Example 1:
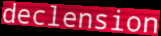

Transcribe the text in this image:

declension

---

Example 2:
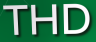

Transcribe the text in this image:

THD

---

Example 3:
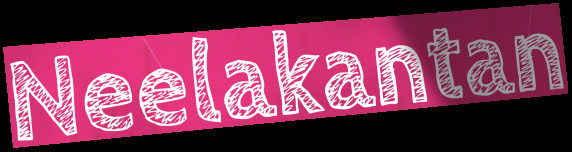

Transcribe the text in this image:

Neelakantan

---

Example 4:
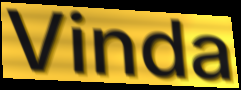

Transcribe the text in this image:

Vinda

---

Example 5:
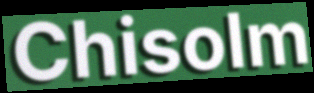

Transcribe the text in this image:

Chisolm